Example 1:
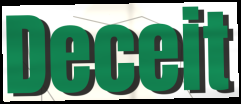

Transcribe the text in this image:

Deceit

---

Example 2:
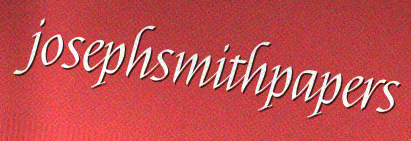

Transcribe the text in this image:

josephsmithpapers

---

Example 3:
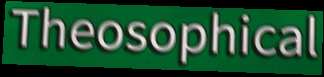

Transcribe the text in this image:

Theosophical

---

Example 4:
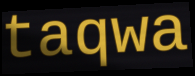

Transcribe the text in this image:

taqwa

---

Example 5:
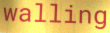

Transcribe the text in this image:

walling